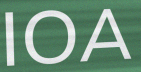
IOA